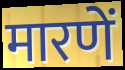
मारणें